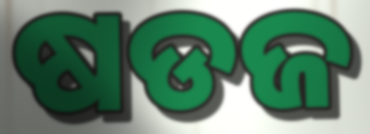
ଷଡଜ